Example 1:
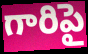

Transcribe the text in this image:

గారిపై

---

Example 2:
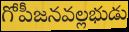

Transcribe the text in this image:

గోపీజనవల్లభుడు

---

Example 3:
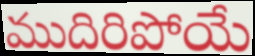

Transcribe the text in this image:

ముదిరిపోయే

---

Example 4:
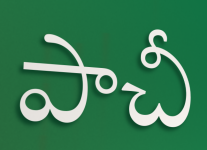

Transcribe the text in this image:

పాచీ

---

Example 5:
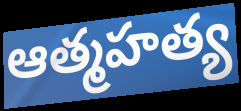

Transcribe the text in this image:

ఆత్మహత్య